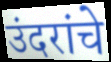
उंदरांचे